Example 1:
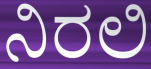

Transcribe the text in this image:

ನಿರಲಿ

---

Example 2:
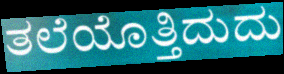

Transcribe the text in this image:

ತಲೆಯೊತ್ತಿದುದು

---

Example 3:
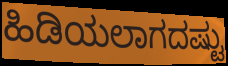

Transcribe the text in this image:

ಹಿಡಿಯಲಾಗದಷ್ಟು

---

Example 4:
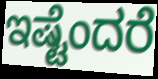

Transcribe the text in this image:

ಇಷ್ಟೆಂದರೆ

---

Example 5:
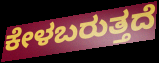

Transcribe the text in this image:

ಕೇಳಬರುತ್ತದೆ